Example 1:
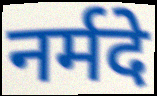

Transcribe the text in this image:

नर्मदे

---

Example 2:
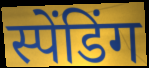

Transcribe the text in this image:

स्पेंडिंग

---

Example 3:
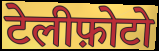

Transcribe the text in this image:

टेलीफ़ोटो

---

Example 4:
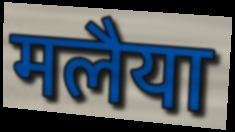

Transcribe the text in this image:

मलैया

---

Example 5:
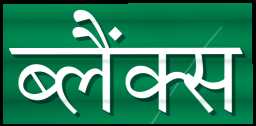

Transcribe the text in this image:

ब्लैंक्स